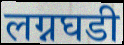
लग्नघडी